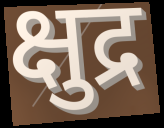
क्षुद्र